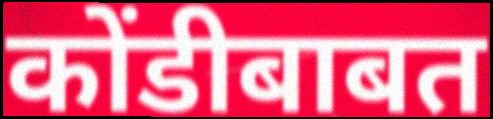
कोंडीबाबत